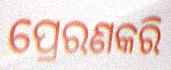
ପ୍ରେରଣକରି